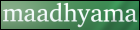
maadhyama